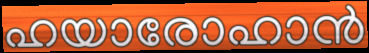
ഹയാരോഹാൻ